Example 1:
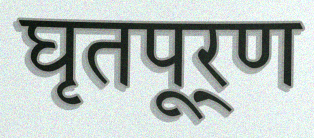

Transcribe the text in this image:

घृतपूर्ण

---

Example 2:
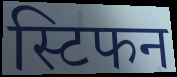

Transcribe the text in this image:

स्टिफन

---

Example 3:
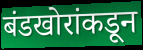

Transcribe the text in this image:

बंडखोरांकडून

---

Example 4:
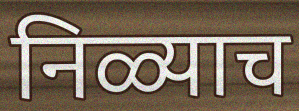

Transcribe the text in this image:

निळ्याच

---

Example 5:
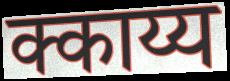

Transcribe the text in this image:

क्काय्य